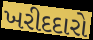
ખરીદદારો